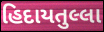
હિદાયતુલ્લા